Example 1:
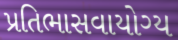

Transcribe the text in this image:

પ્રતિભાસવાયોગ્ય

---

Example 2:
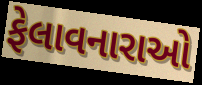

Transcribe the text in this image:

ફેલાવનારાઓ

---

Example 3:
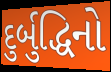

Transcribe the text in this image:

દુર્બુદ્ધિનો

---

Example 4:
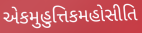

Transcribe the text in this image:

એકમુહુત્તિકમહોસીતિ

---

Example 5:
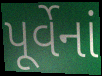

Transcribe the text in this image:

પૂર્વેનાં